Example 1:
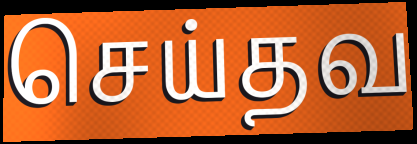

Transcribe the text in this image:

செய்தவ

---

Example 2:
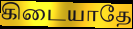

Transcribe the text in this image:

கிடையாதே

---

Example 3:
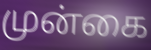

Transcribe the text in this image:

முன்கை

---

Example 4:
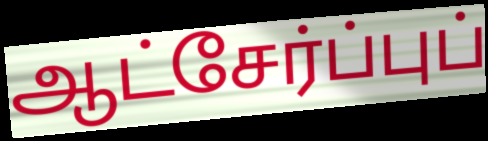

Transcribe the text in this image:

ஆட்சேர்ப்புப்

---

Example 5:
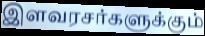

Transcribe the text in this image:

இளவரசர்களுக்கும்